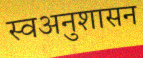
स्वअनुशासन